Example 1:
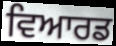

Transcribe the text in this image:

ਵਿਆਰਡ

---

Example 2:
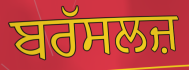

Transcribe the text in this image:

ਬਰੱਸਲਜ਼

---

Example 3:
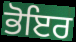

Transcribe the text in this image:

ਭੋਇਰ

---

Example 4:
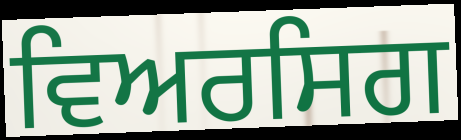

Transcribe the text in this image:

ਵਿਅਰਸਿਗ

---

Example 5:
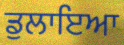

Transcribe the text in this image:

ਡੁਲਾਇਆ